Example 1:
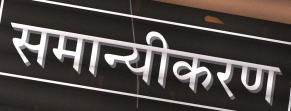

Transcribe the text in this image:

समान्यीकरण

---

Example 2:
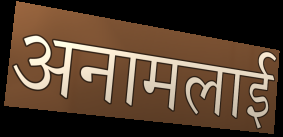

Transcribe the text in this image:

अनामलाई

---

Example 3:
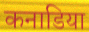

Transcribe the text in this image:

कनाडिया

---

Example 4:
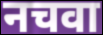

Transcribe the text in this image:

नचवा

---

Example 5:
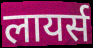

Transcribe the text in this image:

लायर्स